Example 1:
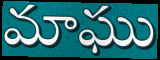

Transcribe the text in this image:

మాఘు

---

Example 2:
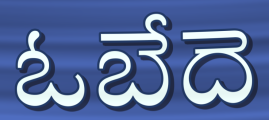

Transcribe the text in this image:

ఓబేదె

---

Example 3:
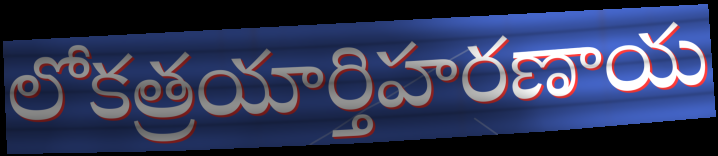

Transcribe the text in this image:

లోకత్రయార్తిహరణాయ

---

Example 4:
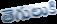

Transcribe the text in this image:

తెగులుకి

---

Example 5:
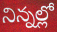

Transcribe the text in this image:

నిన్నల్లో